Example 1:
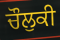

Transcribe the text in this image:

ਚੌਲੁਕੀ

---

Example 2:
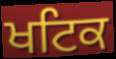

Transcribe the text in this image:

ਖਟਿਕ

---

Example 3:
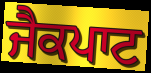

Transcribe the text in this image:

ਜੈਕਪਾਟ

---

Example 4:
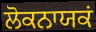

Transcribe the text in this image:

ਲੋਕਨਾਯਕਂ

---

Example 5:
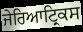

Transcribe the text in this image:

ਜੇਰਿਆਟ੍ਰਿਕਸ